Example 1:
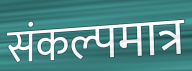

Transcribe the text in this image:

संकल्पमात्र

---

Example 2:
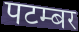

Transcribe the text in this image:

पटम्बर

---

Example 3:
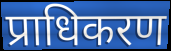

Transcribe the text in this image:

प्राधिकरण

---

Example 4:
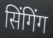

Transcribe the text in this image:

सिंगिंग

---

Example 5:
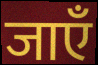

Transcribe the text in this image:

जाएँ